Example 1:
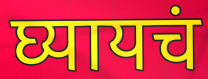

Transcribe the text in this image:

घ्यायचं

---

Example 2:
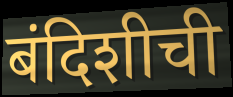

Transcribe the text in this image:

बंदिशीची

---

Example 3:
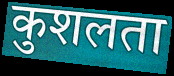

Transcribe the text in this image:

कुशलता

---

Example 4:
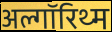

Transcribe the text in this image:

अल्गॉरिथ्म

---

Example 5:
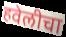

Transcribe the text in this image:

हवेलीचा